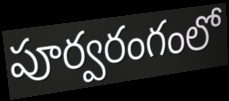
పూర్వరంగంలో